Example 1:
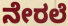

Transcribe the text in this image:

ನೇರಲೆ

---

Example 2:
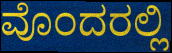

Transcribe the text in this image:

ವೊಂದರಲ್ಲಿ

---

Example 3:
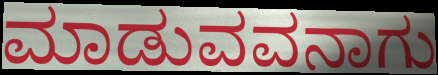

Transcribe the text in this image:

ಮಾಡುವವನಾಗು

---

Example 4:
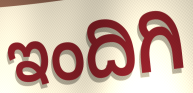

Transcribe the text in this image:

ಇಂದಿಗಿ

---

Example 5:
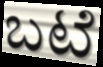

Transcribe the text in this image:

ಬಟೆ